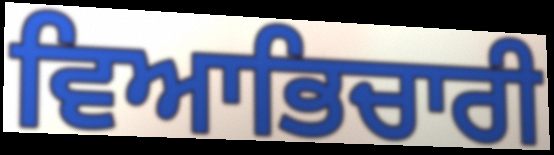
ਵਿਆਭਿਚਾਰੀ